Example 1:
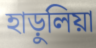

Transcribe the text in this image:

হাড়ুলিয়া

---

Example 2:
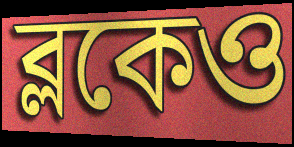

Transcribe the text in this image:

ব্লকেও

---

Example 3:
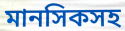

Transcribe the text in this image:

মানসিকসহ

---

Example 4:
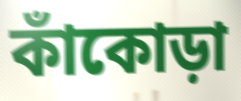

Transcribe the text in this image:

কাঁকোড়া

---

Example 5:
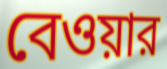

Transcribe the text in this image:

বেওয়ার